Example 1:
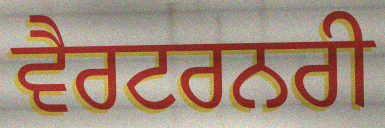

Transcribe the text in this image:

ਵੈਰਟਰਨਰੀ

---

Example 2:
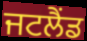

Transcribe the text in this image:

ਜਟਲੈਂਡ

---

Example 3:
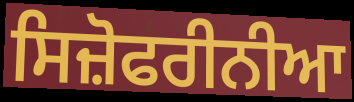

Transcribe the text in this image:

ਸਿਜ਼ੋਫਰੀਨੀਆ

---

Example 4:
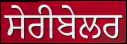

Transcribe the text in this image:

ਸੇਰੀਬੇਲਰ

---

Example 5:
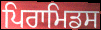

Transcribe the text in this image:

ਪਿਰਾਮਿਡਸ